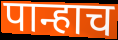
पान्हाच